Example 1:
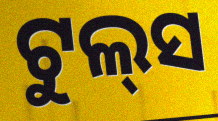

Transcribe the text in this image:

ଟୁଲ୍‌ସ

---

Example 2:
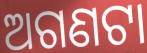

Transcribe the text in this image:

ଅଗଣଟା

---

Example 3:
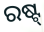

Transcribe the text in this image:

ରଷ୍ଟ୍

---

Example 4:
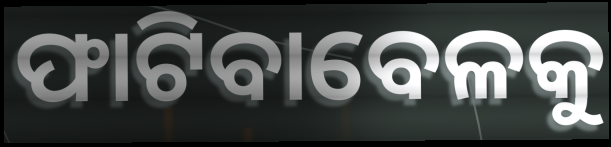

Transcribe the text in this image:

ଫାଟିବାବେଳକୁ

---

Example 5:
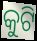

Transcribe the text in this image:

କୁଟି